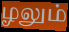
ழலும்